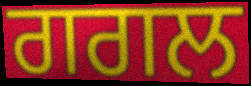
ਗਗਲ